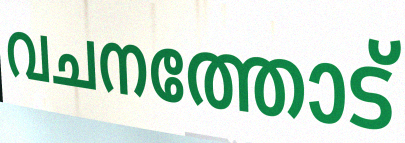
വചനത്തോട്